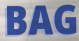
BAG